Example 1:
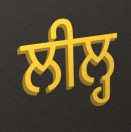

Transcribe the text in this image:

ਲੀਲ੍ਹ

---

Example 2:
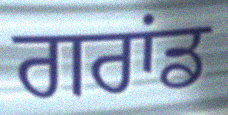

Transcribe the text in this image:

ਗਰਾਂਡ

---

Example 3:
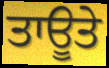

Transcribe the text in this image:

ਤਾਊਤੇ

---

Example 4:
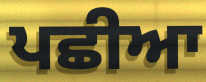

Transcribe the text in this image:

ਪਛੀਆ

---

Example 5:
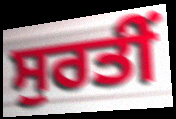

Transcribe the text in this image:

ਸੁਰਤੀਂ